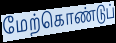
மேற்கொண்டுப்